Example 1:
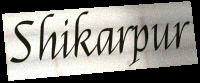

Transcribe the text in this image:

Shikarpur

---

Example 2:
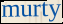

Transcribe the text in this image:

murty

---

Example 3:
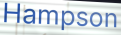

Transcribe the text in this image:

Hampson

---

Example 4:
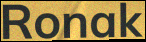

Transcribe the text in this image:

Ronak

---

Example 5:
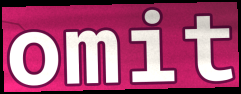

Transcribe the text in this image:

omit